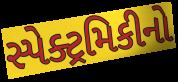
સ્પેક્ટ્રમિકીનો